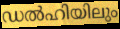
ഡൽഹിയിലും